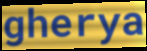
gherya